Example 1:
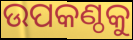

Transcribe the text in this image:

ଉପକଣ୍ଠକୁ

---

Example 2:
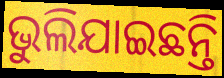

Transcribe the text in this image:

ଭୁଲିଯାଇଛନ୍ତି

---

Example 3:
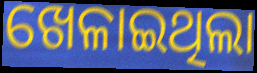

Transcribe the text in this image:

ଖେଳାଇଥିଲା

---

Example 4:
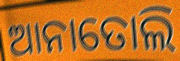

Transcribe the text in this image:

ଆନାତୋଲି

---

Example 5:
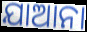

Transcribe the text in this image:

ଯାଆନା